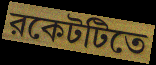
রকেটটিতে